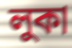
লুকা